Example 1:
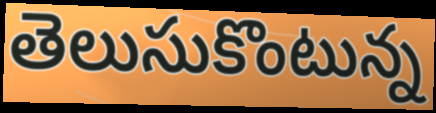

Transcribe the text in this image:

తెలుసుకొంటున్న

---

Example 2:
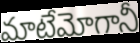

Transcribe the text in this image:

మాటేమోగానీ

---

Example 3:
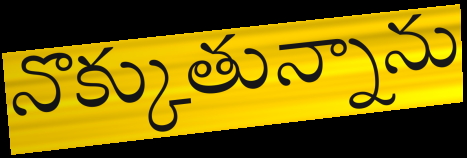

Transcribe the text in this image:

నొక్కుతున్నాను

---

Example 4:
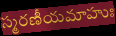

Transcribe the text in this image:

స్మరణీయమాహుః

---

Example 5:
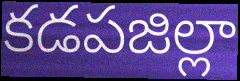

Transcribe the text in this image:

కడపజిల్లా